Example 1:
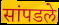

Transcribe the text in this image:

सांपडले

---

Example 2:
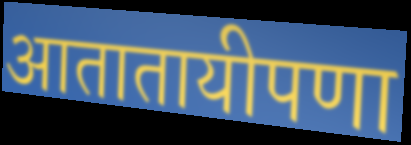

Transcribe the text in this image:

आतातायीपणा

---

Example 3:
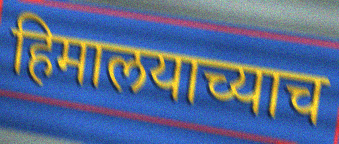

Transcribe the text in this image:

हिमालयाच्याच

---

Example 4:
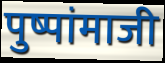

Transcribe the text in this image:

पुष्पांमाजी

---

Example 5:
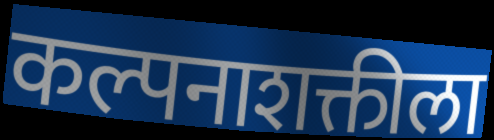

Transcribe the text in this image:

कल्पनाशक्तीला